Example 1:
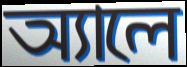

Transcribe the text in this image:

অ্যালে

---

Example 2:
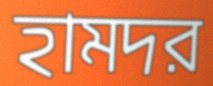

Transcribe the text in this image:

হামদর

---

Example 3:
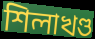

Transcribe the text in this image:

শিলাখণ্ড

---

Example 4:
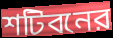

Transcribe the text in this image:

শটিবনের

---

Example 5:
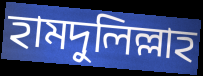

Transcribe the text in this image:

হামদুলিল্লাহ